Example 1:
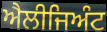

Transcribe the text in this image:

ਐਲੀਜਿਅੰਟ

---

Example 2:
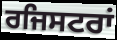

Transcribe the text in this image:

ਰਜਿਸਟਰਾਂ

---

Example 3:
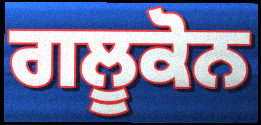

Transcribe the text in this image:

ਗਲੂਕੋਨ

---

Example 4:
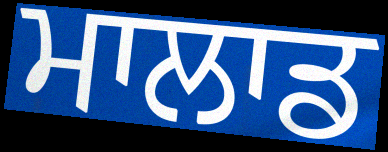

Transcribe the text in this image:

ਮਾਲਾਡ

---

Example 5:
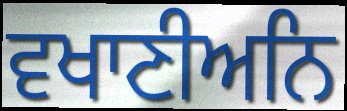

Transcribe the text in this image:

ਵਖਾਣੀਅਨਿ